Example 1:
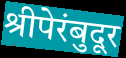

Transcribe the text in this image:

श्रीपेरंबुदूर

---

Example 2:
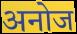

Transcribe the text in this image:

अनोज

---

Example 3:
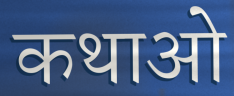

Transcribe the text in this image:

कथाओ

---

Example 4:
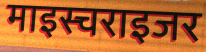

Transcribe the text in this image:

माइस्चराइजर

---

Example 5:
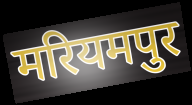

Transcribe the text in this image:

मरियमपुर